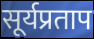
सूर्यप्रताप